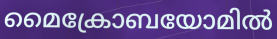
മൈക്രോബയോമിൽ